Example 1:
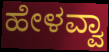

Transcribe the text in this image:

ಹೇಳವ್ವಾ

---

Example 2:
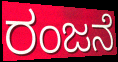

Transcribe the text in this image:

ರಂಜನೆ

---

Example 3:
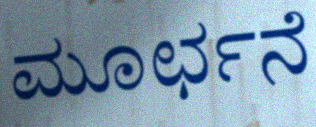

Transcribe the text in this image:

ಮೂರ್ಛನೆ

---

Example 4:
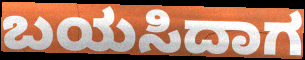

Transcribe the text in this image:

ಬಯಸಿದಾಗ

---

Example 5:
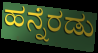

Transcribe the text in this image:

ಹನ್ನೆರಡು